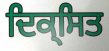
ਦਿਕ੍ਸਿਤ